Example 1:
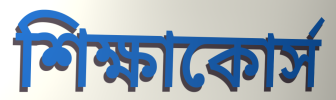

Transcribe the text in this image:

শিক্ষাকোর্স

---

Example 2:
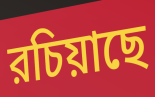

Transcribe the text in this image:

রচিয়াছে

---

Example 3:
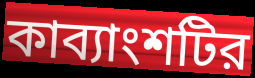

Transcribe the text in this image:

কাব্যাংশটির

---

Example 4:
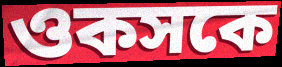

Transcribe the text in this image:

ওকসকে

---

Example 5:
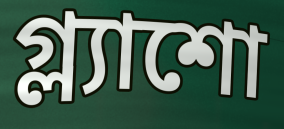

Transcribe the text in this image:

গ্ল্যাশো